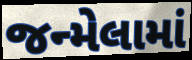
જન્મેલામાં